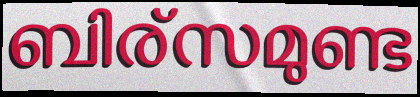
ബിര്സമുണ്ട